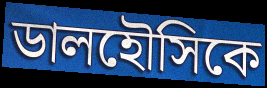
ডালহৌসিকে